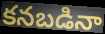
కనబడినా